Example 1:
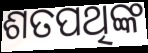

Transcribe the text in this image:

ଶତପଥିଙ୍କ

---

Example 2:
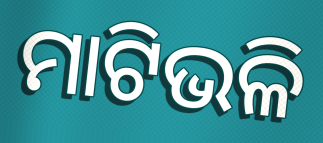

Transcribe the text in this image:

ମାଟିଭଳି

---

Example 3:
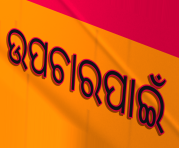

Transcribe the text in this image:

ଉପଚାରପାଇଁ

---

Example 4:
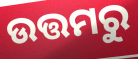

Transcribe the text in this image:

ଉତ୍ତମରୁ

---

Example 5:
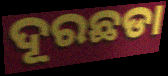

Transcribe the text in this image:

ଦୂରଛଡା